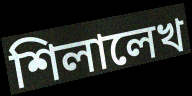
শিলালেখ